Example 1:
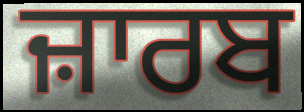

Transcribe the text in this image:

ਜ਼ਾਰਬ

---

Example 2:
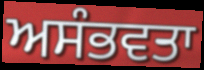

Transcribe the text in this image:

ਅਸੰਭਵਤਾ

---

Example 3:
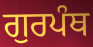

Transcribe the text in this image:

ਗੁਰਪੰਥ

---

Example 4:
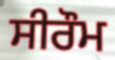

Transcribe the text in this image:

ਸੀਰੌਮ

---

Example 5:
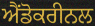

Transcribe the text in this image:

ਐਂਡੋਕਰੀਨਲ